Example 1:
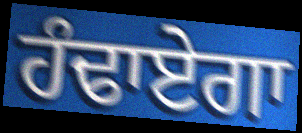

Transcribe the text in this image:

ਹੰਢਾਏਗਾ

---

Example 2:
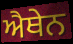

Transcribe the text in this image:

ਐਥੇਨ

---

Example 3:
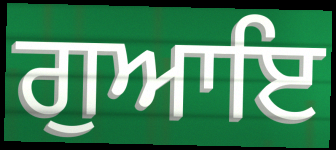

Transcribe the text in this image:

ਗੁਆਇ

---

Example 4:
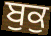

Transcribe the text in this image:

ਬੁਕੁ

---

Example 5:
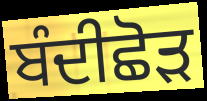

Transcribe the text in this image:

ਬੰਦੀਛੋੜ